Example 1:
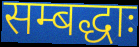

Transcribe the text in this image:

सम्बद्धाः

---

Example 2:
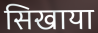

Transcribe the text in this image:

सिखाया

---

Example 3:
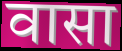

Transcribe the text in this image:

वासा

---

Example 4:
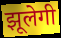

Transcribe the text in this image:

झूलेगी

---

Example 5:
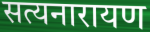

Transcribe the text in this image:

सत्यनारायण